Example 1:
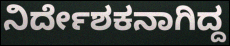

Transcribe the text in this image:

ನಿರ್ದೇಶಕನಾಗಿದ್ದ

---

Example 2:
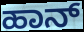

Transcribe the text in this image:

ಹಾನ್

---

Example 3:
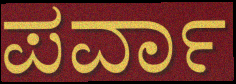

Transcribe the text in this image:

ಪರ್ವಾ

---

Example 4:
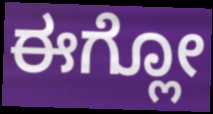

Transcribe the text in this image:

ಈಗ್ಲೋ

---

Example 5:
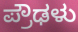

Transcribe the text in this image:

ಪ್ರೌಢಳು